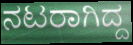
ನಟರಾಗಿದ್ದ